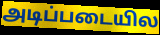
அடிப்படையில